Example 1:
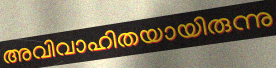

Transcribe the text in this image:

അവിവാഹിതയായിരുന്നു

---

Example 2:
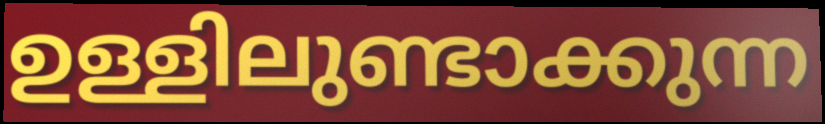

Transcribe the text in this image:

ഉള്ളിലുണ്ടാക്കുന്ന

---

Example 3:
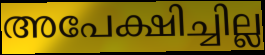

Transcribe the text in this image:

അപേക്ഷിച്ചില്ല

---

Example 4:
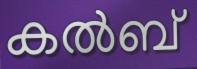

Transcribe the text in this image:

കൽബ്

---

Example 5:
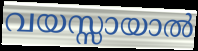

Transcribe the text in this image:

വയസ്സായാൽ